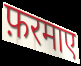
फ़रमाए